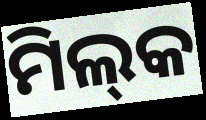
ମିଲ୍‌କ